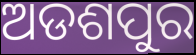
ଅଡଶପୁର